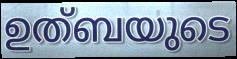
ഉത്ബയുടെ